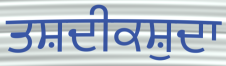
ਤਸ਼ਦੀਕਸ਼ੁਦਾ